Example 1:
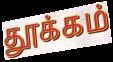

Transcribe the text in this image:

தூக்கம்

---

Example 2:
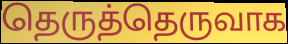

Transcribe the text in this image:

தெருத்தெருவாக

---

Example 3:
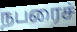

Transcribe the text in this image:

நபரைச்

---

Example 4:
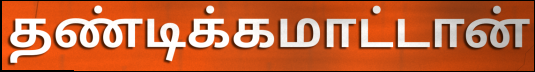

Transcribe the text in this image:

தண்டிக்கமாட்டான்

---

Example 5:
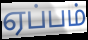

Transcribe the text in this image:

ஏப்பம்